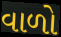
વાળો